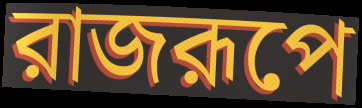
রাজরূপে